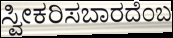
ಸ್ವೀಕರಿಸಬಾರದೆಂಬ